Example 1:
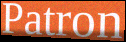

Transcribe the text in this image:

Patron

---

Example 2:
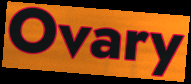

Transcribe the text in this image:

Ovary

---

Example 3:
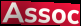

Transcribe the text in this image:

Assoc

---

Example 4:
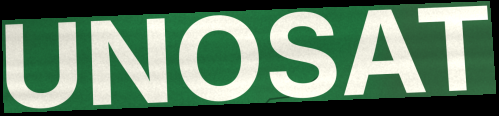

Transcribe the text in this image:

UNOSAT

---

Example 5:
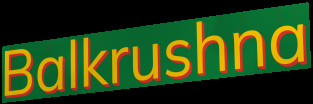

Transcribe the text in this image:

Balkrushna